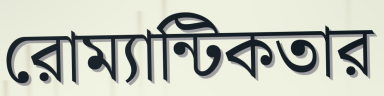
রোম্যান্টিকতার